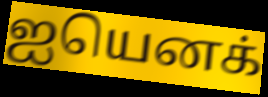
ஐயெனக்